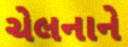
ચેલનાને